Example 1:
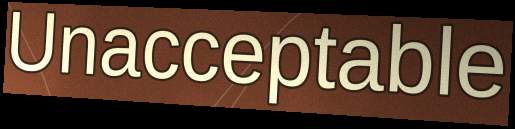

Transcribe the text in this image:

Unacceptable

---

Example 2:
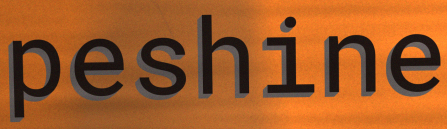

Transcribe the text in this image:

peshine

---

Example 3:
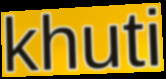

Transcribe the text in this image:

khuti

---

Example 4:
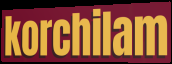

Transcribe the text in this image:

korchilam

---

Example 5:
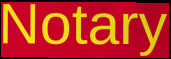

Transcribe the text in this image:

Notary